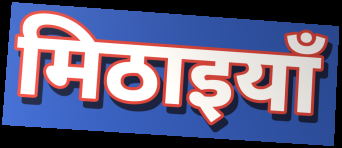
मिठाइयाँ